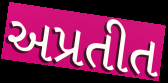
અપ્રતીત